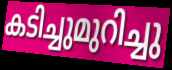
കടിച്ചുമുറിച്ചു